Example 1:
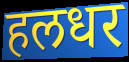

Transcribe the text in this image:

हलधर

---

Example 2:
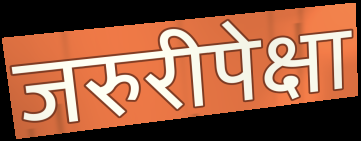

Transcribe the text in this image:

जरुरीपेक्षा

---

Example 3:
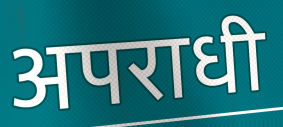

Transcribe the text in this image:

अपराधी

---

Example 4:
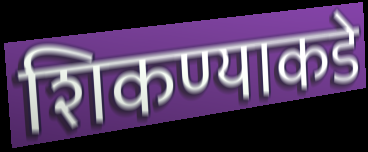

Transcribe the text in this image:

शिकण्याकडे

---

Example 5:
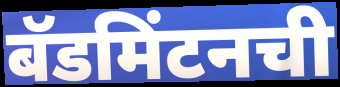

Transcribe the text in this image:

बॅडमिंटनची